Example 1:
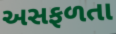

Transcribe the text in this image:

અસફળતા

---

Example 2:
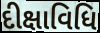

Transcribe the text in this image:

દીક્ષાવિધિ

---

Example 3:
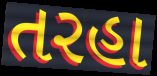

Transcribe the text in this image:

તરહા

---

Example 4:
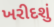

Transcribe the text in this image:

ખરીદશું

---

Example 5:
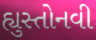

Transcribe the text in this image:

હ્યુસ્તોનવી